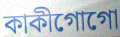
কাকীগোগো